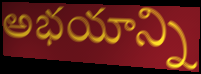
అభయాన్ని